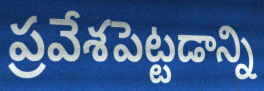
ప్రవేశపెట్టడాన్ని